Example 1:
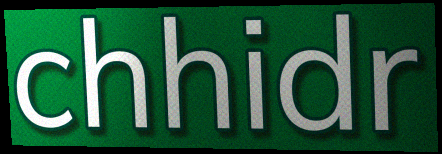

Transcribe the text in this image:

chhidr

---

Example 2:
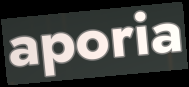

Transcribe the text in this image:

aporia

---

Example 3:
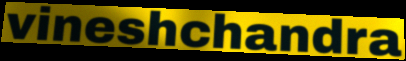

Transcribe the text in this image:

vineshchandra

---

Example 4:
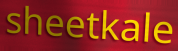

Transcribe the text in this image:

sheetkale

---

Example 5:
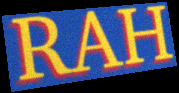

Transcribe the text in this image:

RAH